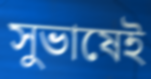
সুভাষেই